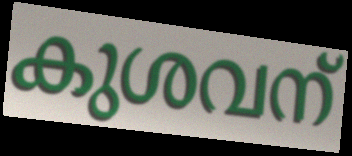
കുശവന്